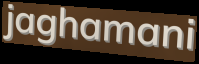
jaghamani